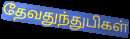
தேவதுந்துபிகள்